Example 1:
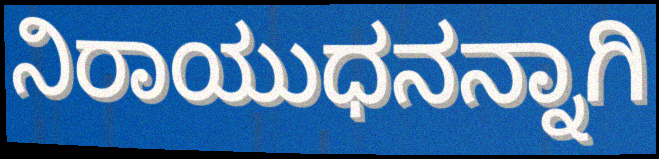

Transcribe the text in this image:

ನಿರಾಯುಧನನ್ನಾಗಿ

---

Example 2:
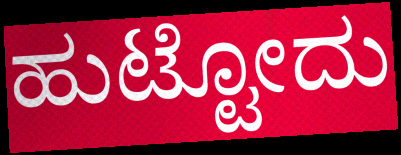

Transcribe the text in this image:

ಹುಟ್ಟೋದು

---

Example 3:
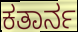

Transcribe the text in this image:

ಕತಾರ್ನ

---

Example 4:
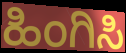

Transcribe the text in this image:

ಹಿಂಗಿಸಿ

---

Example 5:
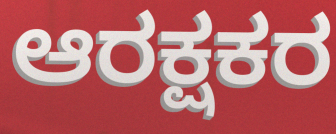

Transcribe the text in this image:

ಆರಕ್ಷಕರ